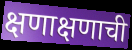
क्षणाक्षणाची